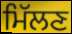
ਮਿੱਲਣ